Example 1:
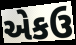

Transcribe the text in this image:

એકઉ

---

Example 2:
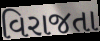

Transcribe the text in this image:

વિરાજતા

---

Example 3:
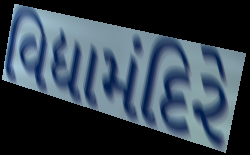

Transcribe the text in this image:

વિદ્યામંદિરે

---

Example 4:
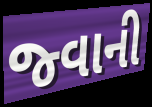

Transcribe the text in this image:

જ્વાની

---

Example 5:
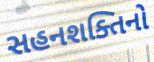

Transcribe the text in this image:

સહનશક્તિનો